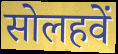
सोलहवें